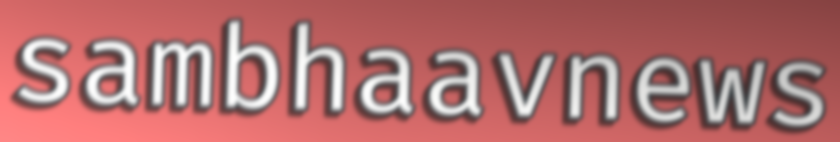
sambhaavnews